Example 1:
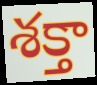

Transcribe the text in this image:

శక్తా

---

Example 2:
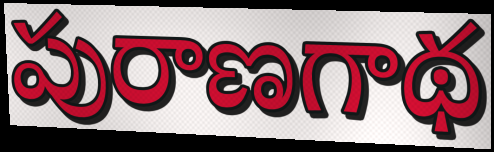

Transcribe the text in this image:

పురాణగాథ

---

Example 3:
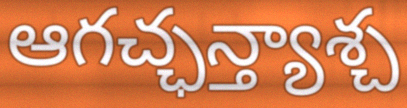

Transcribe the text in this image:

ఆగచ్ఛన్త్యాశ్చ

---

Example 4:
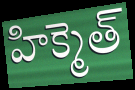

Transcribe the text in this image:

హిక్మెత్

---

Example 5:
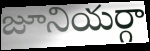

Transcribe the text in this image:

జూనియర్గా